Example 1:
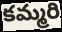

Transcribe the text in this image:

కమ్మరి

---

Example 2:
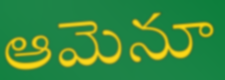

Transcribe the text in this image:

ఆమెనూ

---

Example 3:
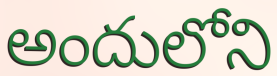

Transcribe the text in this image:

అందులోని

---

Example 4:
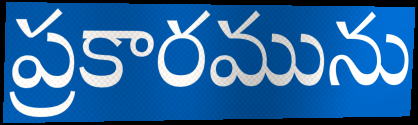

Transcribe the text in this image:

ప్రకారమును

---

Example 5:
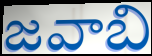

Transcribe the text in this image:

జవాబి